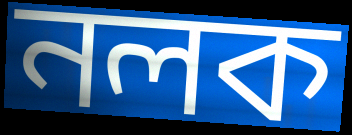
নলক